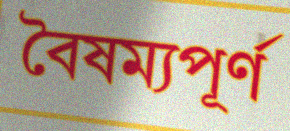
বৈষম্যপূর্ণ